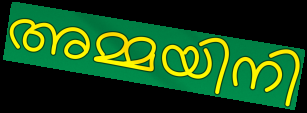
അമ്മയിനി